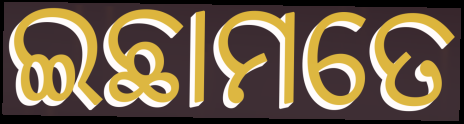
ଇଛାମତେ